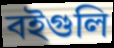
বইগুলি